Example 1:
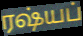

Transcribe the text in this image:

ரஷ்யப்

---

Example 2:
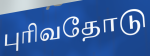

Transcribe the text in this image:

புரிவதோடு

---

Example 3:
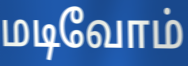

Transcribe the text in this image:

மடிவோம்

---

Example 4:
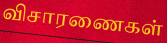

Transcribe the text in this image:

விசாரணைகள்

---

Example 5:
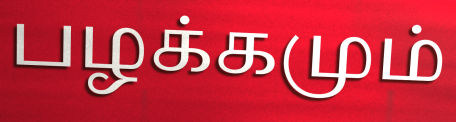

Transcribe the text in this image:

பழக்கமும்